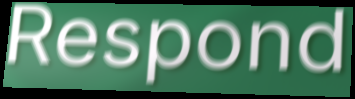
Respond